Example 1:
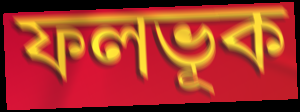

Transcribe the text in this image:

ফলভূক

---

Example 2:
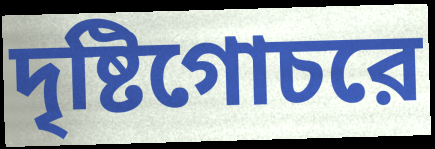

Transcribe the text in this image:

দৃষ্টিগোচরে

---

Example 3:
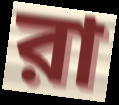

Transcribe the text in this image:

রা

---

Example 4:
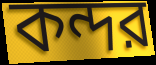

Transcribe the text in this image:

কন্দর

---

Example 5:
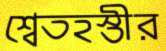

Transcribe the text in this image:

শ্বেতহস্তীর